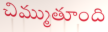
చిమ్ముతూంది